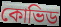
কোভিড